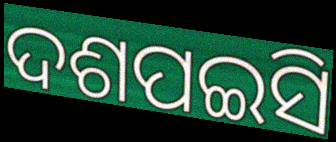
ଦଶପଇସି